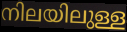
നിലയിലുള്ള